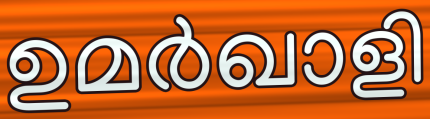
ഉമർഖാളി